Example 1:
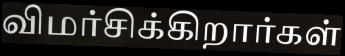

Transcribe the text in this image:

விமர்சிக்கிறார்கள்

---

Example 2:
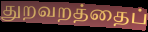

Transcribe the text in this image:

துறவறத்தைப்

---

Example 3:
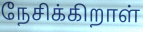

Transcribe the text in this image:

நேசிக்கிறாள்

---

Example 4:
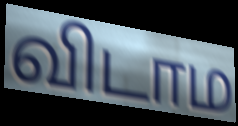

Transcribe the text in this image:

விடாம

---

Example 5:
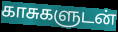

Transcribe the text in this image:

காசுகளுடன்